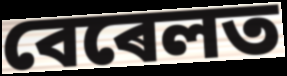
বেৰেলত